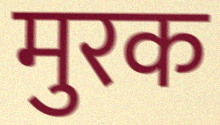
मुरक